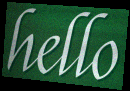
hello